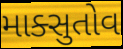
માક્સુતોવ